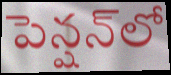
పెన్షన్‌లో